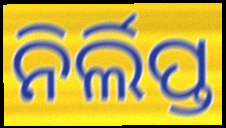
ନିର୍ଲିପ୍ତ